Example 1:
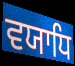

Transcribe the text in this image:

ਵਯਾਧਿ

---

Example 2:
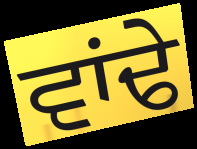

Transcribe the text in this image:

ਵਾਂਢੇ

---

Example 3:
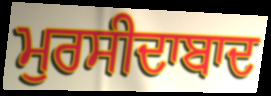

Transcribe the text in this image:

ਮੁਰਸੀਦਾਬਾਦ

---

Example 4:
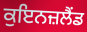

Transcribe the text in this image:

ਕੁਇਨਜ਼ਲੈਂਡ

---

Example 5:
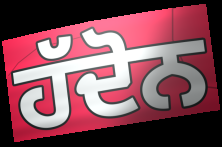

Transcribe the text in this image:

ਹੱਦੋਨ